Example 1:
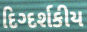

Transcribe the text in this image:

દિગ્દર્શકીય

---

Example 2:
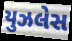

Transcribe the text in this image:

યુઝલેસ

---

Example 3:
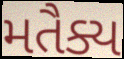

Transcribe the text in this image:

મતૈક્ય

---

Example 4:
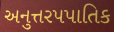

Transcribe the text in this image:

અનુત્તરપપાતિક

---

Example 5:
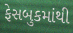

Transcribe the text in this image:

ફેસબુકમાંથી